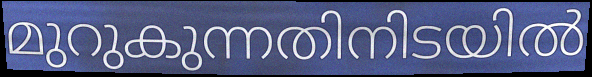
മുറുകുന്നതിനിടയിൽ